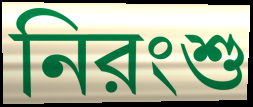
নিরংশু